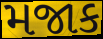
મજાક